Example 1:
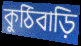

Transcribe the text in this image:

কুঠিবাড়ি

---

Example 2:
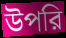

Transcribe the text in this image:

উপরি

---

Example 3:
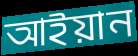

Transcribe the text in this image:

আইয়ান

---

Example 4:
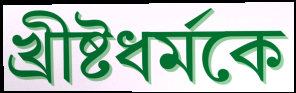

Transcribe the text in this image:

খ্রীষ্টধর্মকে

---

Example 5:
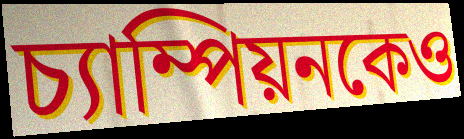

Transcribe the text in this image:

চ্যাম্পিয়নকেও